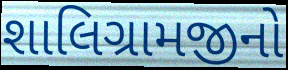
શાલિગ્રામજીનો